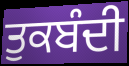
ਤੁਕਬੰਦੀ